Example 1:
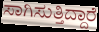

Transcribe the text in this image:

ಸಾಗಿಸುತ್ತಿದ್ದಾರೆ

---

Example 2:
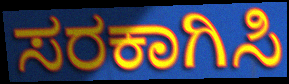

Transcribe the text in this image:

ಸರಕಾಗಿಸಿ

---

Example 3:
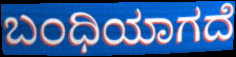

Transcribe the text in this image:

ಬಂಧಿಯಾಗದೆ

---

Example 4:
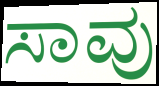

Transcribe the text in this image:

ಸಾವು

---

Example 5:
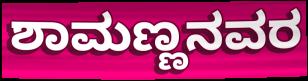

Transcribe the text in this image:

ಶಾಮಣ್ಣನವರ